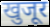
खुजूर